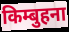
किम्बुहना